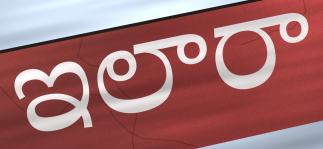
ఇలారా